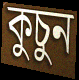
কুচুন